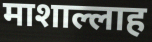
माशाल्लाह